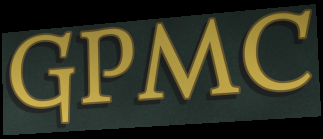
GPMC